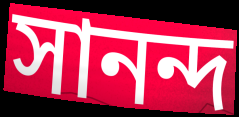
সানন্দ